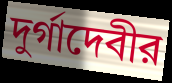
দুর্গাদেবীর